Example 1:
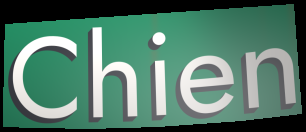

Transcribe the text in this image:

Chien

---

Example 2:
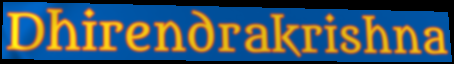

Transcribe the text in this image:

Dhirendrakrishna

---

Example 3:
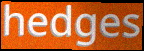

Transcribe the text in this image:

hedges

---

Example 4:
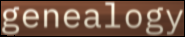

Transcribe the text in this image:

genealogy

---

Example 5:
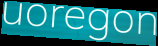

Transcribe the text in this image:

uoregon